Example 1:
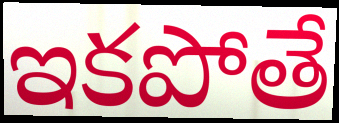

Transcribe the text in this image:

ఇకపోతే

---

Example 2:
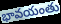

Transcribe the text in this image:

భావయంతు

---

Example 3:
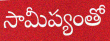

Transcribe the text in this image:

సామీప్యంతో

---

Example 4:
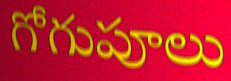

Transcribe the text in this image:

గోగుపూలు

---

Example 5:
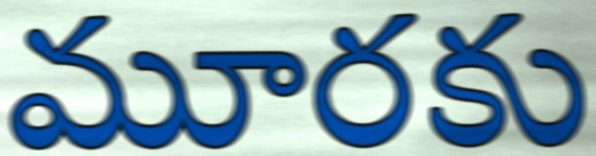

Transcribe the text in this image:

మూరకు